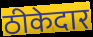
ठीकेदार